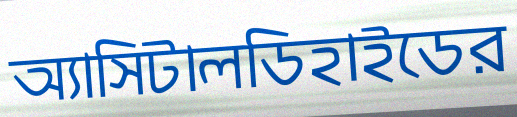
অ্যাসিটালডিহাইডের